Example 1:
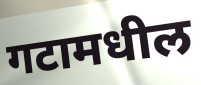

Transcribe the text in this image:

गटामधील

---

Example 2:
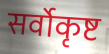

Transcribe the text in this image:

सर्वोकृष्ट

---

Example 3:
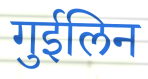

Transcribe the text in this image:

गुईलिन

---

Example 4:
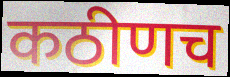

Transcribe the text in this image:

कठीणच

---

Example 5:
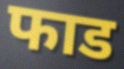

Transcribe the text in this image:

फाड